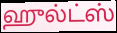
ஹுல்ட்ஸ்